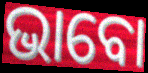
ଭାବୋ